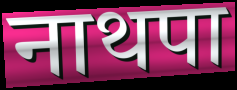
नाथपा